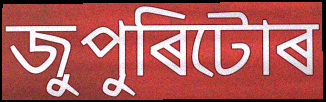
জুপুৰিটোৰ